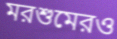
মরশুমেরও